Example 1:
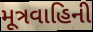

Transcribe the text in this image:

મૂત્રવાહિની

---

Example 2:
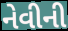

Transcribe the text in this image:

નેવીની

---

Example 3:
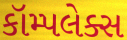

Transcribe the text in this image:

કૉમ્પલેક્સ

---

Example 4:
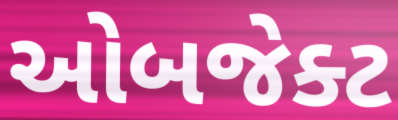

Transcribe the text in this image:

ઓબજેક્ટ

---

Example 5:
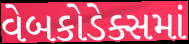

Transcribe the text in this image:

વેબકોડેક્સમાં